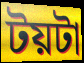
টয়টা